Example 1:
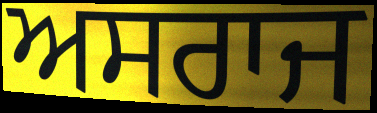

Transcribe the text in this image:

ਅਸਰਾਜ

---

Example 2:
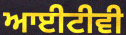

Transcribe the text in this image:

ਆਈਟੀਵੀ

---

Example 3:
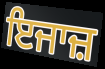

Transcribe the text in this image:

ਇਜਾਜ਼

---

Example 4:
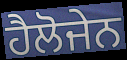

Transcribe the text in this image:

ਹੈਲੋਜੇਨ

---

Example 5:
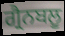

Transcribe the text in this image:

ਗ੍ਰੈਨਬਲੂ